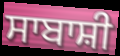
ਸਾਬਾਸ਼ੀ